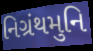
નિગ્રંથમુનિ